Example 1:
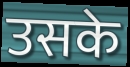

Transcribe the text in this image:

उसके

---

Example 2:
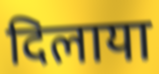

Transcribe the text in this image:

दिलाया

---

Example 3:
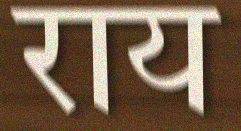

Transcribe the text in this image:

राय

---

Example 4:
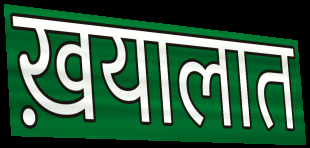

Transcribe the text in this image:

ख़यालात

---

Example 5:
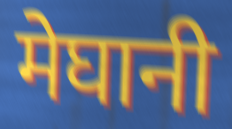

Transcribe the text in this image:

मेघानी